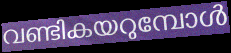
വണ്ടികയറുമ്പോൾ